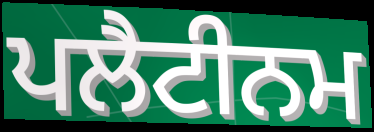
ਪਲੈਟੀਨਮ